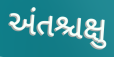
અંતશ્ચક્ષુ